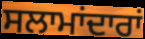
ਸਲਾਮਾਂਦਾਰਾਂ